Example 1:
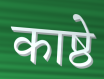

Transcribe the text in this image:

काष्ठे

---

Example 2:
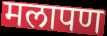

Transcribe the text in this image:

मलापण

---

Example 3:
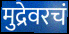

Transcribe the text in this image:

मुद्रेवरचं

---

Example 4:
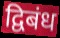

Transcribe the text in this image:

द्विबंध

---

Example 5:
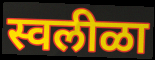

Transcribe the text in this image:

स्वलीळा